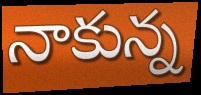
నాకున్న